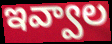
ఇవ్వాల